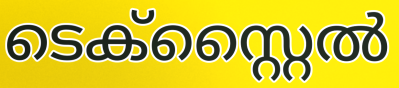
ടെക്സ്റ്റൈൽ